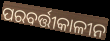
ପରବର୍ତ୍ତୀକାଳୀନ